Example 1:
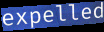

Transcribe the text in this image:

expelled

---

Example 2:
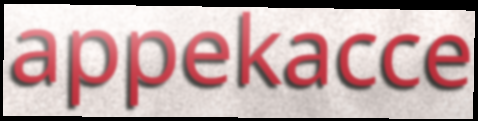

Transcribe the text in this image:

appekacce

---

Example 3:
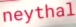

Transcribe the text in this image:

neythal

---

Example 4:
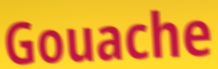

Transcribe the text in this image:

Gouache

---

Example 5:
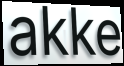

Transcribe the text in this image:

akke